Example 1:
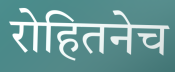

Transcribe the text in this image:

रोहितनेच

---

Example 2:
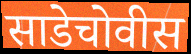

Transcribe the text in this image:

साडेचोवीस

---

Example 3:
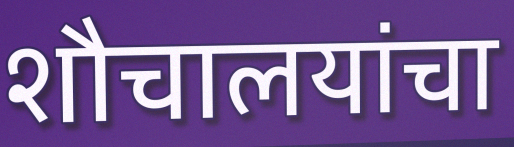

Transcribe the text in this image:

शौचालयांचा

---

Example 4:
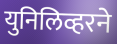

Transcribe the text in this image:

युनिलिव्हरने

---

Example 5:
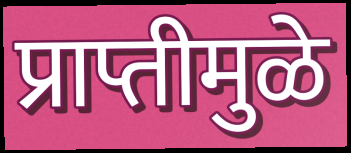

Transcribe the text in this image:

प्राप्तीमुळे